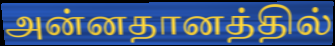
அன்னதானத்தில்